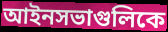
আইনসভাগুলিকে